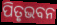
ପିତୃଭବନ